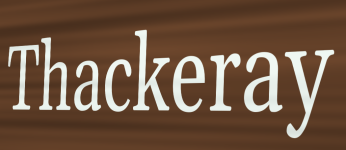
Thackeray